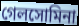
গেলসোমিনা